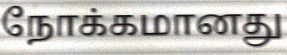
நோக்கமானது